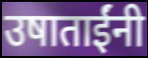
उषाताईंनी